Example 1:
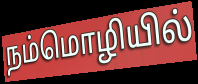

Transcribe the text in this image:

நம்மொழியில்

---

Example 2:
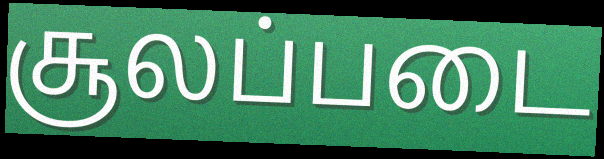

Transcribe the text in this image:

சூலப்படை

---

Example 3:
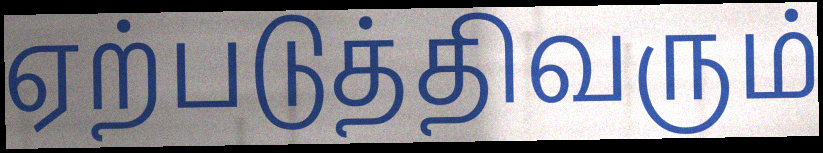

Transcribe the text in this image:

ஏற்படுத்திவரும்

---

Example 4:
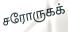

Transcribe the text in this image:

சரோருகக்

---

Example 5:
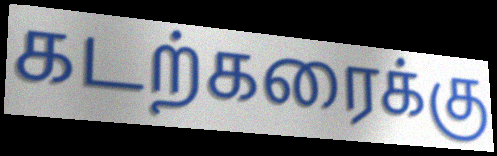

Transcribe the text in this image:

கடற்கரைக்கு